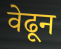
वेढून